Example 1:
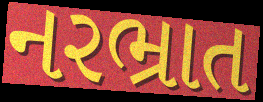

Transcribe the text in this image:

નરભ્રાત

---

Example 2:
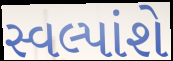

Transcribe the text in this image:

સ્વલ્પાંશે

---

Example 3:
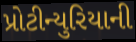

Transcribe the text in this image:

પ્રોટીન્યુરિયાની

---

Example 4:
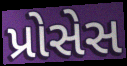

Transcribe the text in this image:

પ્રોસેસ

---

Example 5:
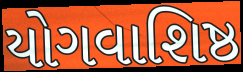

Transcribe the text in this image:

યોગવાશિષ્ઠ